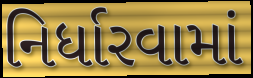
નિર્ધારવામાં